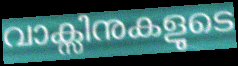
വാക്സിനുകളുടെ